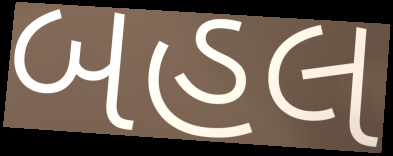
બહલ